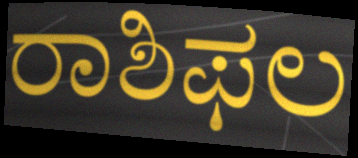
ರಾಶಿಫಲ